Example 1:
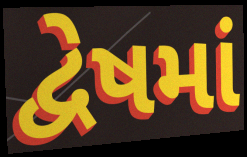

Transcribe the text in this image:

દ્વેષમાં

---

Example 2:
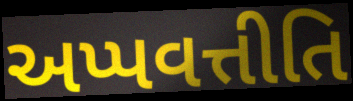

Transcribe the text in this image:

અપ્પવત્તીતિ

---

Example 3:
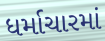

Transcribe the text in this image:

ધર્માચારમાં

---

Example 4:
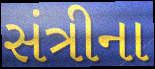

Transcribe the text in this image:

સંત્રીના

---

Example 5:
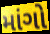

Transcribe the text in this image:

માંગો